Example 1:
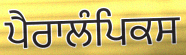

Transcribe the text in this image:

ਪੈਰਾਲੰਪਿਕਸ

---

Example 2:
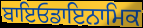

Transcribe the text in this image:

ਬਾਇਓਡਾਇਨਾਮਿਕ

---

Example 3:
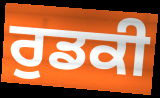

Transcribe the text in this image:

ਰੁਡਕੀ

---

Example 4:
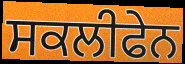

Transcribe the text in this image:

ਸਕਲੀਫੇਨ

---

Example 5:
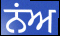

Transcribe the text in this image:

ਨਂਅ